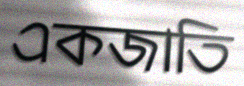
একজাতি